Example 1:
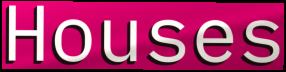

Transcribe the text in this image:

Houses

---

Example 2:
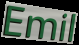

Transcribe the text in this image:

Emil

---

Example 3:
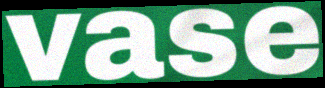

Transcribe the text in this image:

vase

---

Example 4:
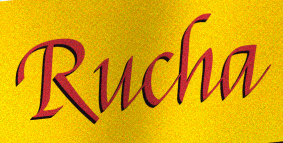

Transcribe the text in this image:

Rucha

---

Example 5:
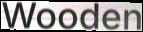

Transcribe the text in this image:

Wooden